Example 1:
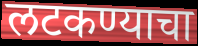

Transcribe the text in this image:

लटकण्याचा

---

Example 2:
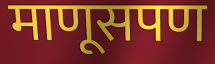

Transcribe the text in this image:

माणूसपण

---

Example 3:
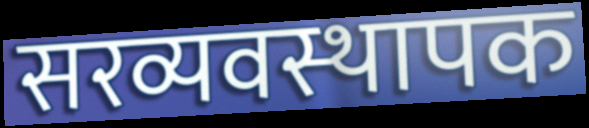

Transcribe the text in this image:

सरव्यवस्थापक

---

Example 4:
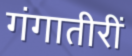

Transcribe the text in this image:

गंगातीरीं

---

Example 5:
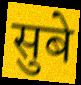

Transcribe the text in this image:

सुबे